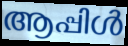
ആപ്പിൾ